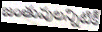
జంతువులన్నిటికీ